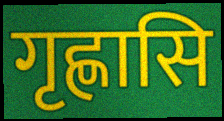
गृह्णासि